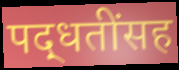
पद्धतींसह